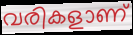
വരികളാണ്